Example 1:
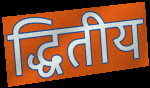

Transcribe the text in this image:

द्धितीय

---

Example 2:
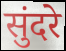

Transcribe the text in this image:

सुंदरे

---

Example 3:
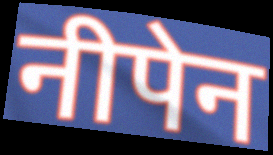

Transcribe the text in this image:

नीपेन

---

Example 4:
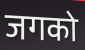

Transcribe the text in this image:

जगको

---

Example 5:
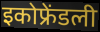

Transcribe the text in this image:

इकोफ्रेंडली